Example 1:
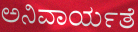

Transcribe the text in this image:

ಅನಿವಾರ್ಯತೆ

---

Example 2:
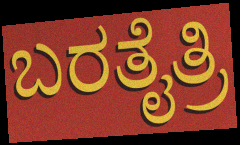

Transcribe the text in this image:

ಬರತೈತ್ರಿ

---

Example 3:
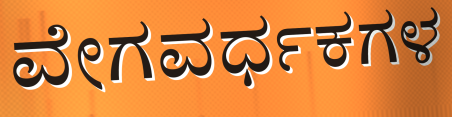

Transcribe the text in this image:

ವೇಗವರ್ಧಕಗಳ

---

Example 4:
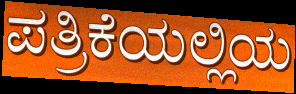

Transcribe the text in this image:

ಪತ್ರಿಕೆಯಲ್ಲಿಯ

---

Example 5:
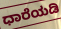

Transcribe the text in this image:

ಧಾರೆಯಡಿ